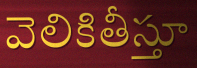
వెలికితీస్తూ